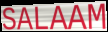
SALAAM